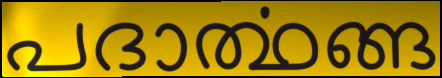
പദാൎത്ഥങ്ങ